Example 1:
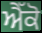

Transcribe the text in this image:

ਐੱਕੋ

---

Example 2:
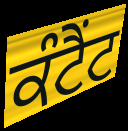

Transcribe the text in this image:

ਕੰਟੈਂਟ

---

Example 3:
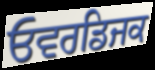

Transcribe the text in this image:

ਓਵਰਡਿਜਕ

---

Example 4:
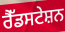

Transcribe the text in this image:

ਰੈੱਡਸਟੇਸ਼ਨ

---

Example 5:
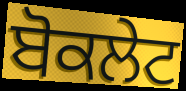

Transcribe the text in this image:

ਬੋਕਲੇਟ